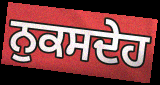
ਨੁਕਸਦੇਹ